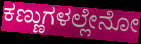
ಕಣ್ಣುಗಳಲ್ಲೇನೋ